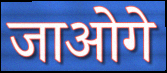
जाओगे